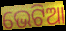
ଭେଟିଆ